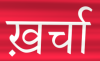
ख़र्चा